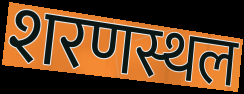
शरणस्थल